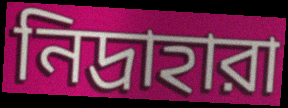
নিদ্রাহারা